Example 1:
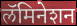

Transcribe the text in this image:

लॅमिनेशन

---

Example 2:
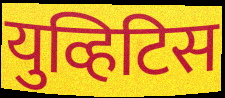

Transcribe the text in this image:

युव्हिटिस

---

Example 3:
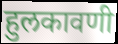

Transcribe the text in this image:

हुलकावणी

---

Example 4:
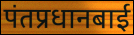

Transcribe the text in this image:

पंतप्रधानबाई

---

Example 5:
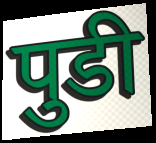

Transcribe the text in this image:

पुडी